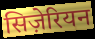
सिज़ेरियन